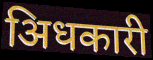
अिधकारी